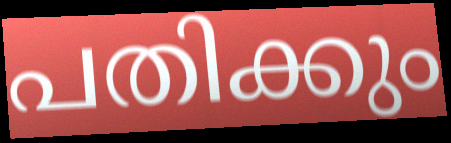
പതിക്കും